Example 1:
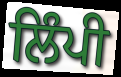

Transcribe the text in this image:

ਲਿੰਪੀ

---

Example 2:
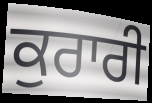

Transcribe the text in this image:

ਕੁਰਾਰੀ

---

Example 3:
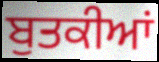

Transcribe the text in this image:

ਬੁਤਕੀਆਂ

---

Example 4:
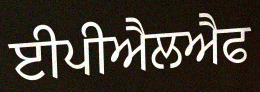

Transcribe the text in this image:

ਈਪੀਐਲਐਫ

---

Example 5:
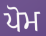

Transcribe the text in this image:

ਪੋਮ